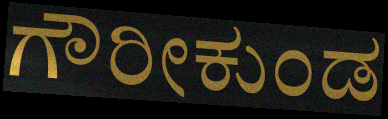
ಗೌರೀಕುಂಡ